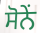
ਸੋਨੇਂ